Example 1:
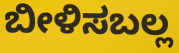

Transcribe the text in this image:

ಬೀಳಿಸಬಲ್ಲ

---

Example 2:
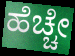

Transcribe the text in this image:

ಹೆಚ್ಚೇ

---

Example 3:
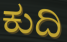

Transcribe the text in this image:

ಕುದಿ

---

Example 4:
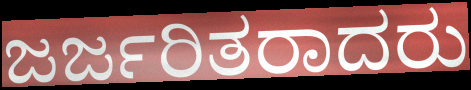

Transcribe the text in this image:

ಜರ್ಜರಿತರಾದರು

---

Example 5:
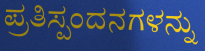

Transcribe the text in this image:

ಪ್ರತಿಸ್ಪಂದನಗಳನ್ನು